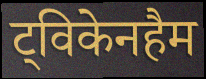
ट्विकेनहैम